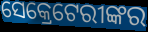
ସେକ୍ରେଟେରୀଙ୍କର